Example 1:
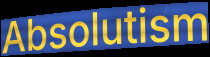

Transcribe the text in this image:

Absolutism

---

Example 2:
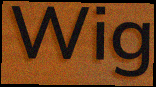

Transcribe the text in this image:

Wig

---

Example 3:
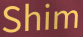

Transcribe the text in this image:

Shim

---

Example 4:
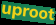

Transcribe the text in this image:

uproot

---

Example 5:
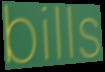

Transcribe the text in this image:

bills